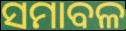
ସମାବଳ